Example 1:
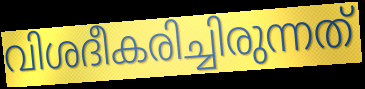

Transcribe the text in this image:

വിശദീകരിച്ചിരുന്നത്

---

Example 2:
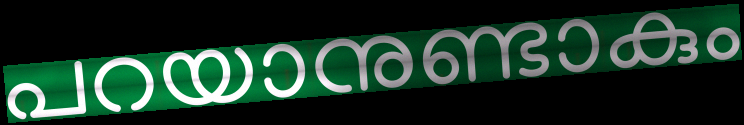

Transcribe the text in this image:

പറയാനുണ്ടാകും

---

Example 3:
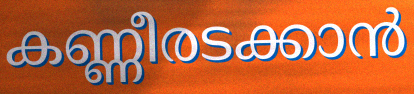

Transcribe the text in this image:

കണ്ണീരടക്കാൻ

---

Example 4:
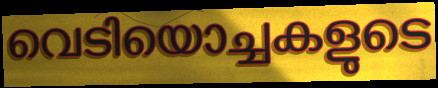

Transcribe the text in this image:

വെടിയൊച്ചകളുടെ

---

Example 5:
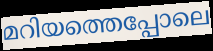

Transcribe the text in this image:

മറിയത്തെപ്പോലെ